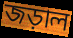
জড়াল